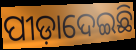
ପୀଡ଼ାଦେଇଛି